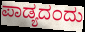
ಪಾಡ್ಯದಂದು